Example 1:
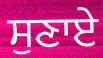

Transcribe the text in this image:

ਸੁਣਾਏ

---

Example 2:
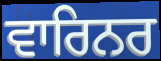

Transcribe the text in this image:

ਵਾਰਿਨਰ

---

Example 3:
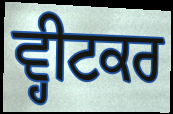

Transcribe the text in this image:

ਵ੍ਹੀਟਕਰ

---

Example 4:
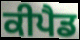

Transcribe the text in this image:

ਕੀਪੈਡ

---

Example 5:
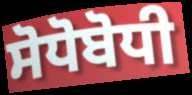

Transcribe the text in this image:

ਸੋਧੋਬੋਧੀ